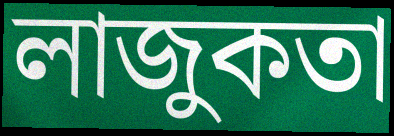
লাজুকতা